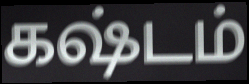
கஷ்டம்